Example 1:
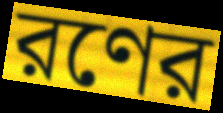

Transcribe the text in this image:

রণের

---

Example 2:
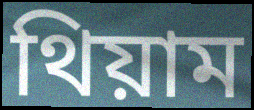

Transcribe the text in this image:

থিয়াম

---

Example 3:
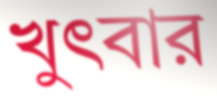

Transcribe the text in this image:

খুৎবার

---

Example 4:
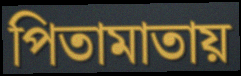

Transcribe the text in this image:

পিতামাতায়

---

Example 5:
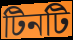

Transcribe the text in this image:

টিনটি